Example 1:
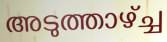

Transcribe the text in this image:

അടുത്താഴ്ച്ച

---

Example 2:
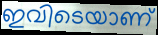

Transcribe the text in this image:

ഇവിടെയാണ്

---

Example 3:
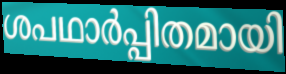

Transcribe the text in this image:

ശപഥാർപ്പിതമായി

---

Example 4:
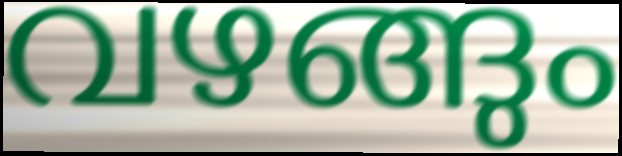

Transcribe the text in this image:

വഴങ്ങും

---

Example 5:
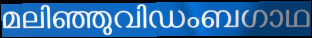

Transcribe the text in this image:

മലിഞ്ഞുവിഡംബഗാഥ